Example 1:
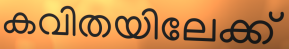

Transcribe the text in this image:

കവിതയിലേക്ക്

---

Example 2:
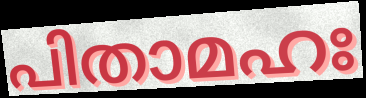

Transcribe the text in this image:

പിതാമഹഃ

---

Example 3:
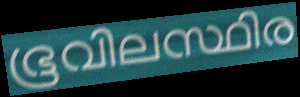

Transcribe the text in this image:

ഭൂവിലസ്ഥിര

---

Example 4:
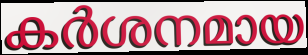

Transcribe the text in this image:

കർശനമായ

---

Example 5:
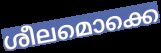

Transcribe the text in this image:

ശീലമൊക്കെ